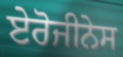
ਏਰੋਜੀਨੇਸ